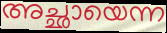
അച്ഛായെന്ന